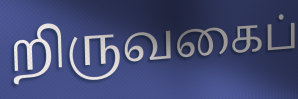
றிருவகைப்